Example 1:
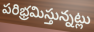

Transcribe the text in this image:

పరిభ్రమిస్తున్నట్లు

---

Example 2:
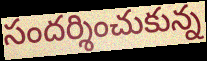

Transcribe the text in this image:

సందర్శించుకున్న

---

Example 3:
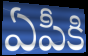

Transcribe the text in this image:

ఏపీకి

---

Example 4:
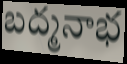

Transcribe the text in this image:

బద్మనాభ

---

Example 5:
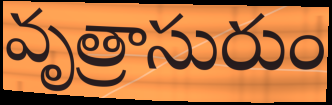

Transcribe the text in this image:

వృత్రాసురుం